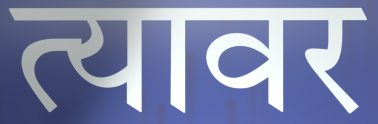
त्‍यावर